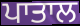
ਪਾਤਾਲ